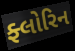
ફ્લોરિન